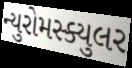
ન્યુરોમસ્ક્યુલર